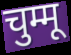
चुम्मू